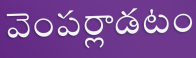
వెంపర్లాడటం